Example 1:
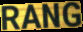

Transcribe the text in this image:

RANG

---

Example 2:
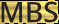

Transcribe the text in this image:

MBS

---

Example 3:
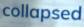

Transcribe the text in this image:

collapsed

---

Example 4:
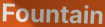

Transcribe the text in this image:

Fountain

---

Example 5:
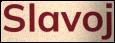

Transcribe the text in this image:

Slavoj